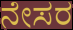
ನೇಸರ